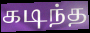
கடிந்த